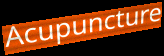
Acupuncture